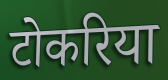
टोकरिया